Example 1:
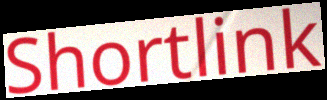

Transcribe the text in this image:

Shortlink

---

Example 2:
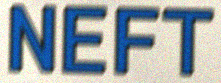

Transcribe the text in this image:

NEFT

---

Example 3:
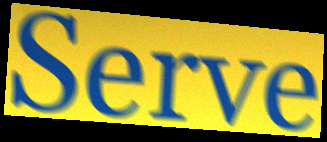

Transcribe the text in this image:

Serve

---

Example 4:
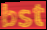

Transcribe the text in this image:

bst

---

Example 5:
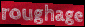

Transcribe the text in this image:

roughage